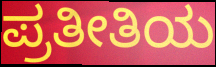
ಪ್ರತೀತಿಯ